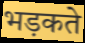
भड़कते